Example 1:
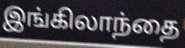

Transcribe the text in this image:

இங்கிலாந்தை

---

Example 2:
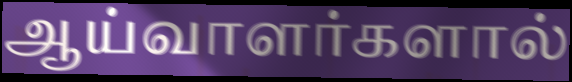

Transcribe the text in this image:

ஆய்வாளர்களால்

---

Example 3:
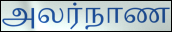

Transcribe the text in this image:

அலர்நாண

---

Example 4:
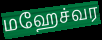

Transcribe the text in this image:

மஹேச்வர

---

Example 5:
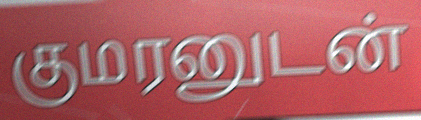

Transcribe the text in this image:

குமரனுடன்